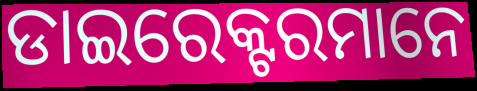
ଡାଇରେକ୍ଟରମାନେ